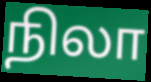
நிலா